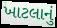
ખાટલાનું